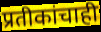
प्रतीकांचाही